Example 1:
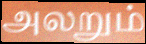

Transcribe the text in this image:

அலறும்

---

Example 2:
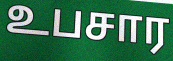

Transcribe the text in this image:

உபசார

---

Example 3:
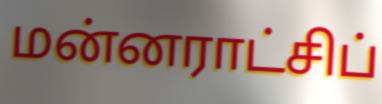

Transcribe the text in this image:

மன்னராட்சிப்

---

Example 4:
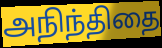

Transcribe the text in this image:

அநிந்திதை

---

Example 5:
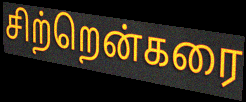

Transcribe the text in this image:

சிற்றென்கரை